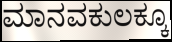
ಮಾನವಕುಲಕ್ಕೂ